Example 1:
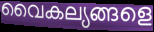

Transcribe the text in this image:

വൈകല്യങ്ങളെ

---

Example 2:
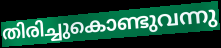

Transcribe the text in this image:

തിരിച്ചുകൊണ്ടുവന്നു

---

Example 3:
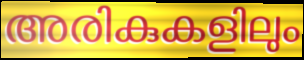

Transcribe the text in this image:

അരികുകളിലും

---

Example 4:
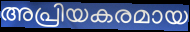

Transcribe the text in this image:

അപ്രിയകരമായ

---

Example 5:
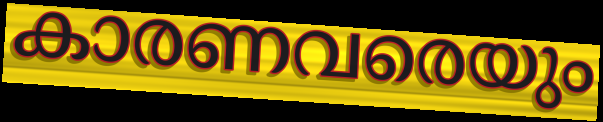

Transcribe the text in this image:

കാരണവരെയും